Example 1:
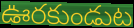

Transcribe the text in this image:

ఊరకుండుట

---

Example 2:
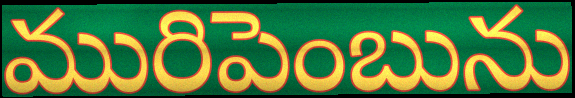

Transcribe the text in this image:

మురిపెంబును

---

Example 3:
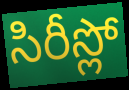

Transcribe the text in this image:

సిరీస్లో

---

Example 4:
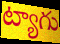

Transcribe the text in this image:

ట్యాగు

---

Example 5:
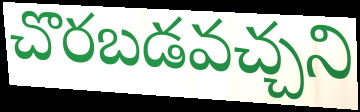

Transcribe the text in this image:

చొరబడవచ్చని